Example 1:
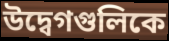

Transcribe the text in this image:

উদ্বেগগুলিকে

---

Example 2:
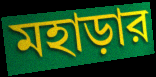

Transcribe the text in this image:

মহাড়ার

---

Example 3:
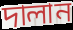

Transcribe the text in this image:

দালান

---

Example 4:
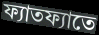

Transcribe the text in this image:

ফ্যাতফ্যাতে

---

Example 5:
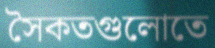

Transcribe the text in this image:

সৈকতগুলোতে